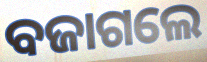
ବଜାଗଲେ